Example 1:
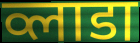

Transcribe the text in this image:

व्लाडा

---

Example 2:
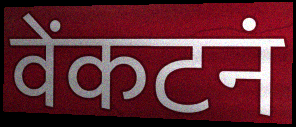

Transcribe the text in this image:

वेंकटनं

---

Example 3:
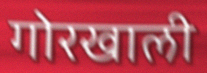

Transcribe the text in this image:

गोरखाली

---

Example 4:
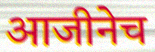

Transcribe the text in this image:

आजीनेच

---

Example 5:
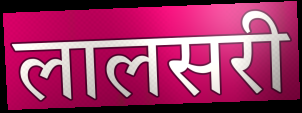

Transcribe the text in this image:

लालसरी